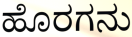
ಹೊರಗನು